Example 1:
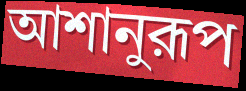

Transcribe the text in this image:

আশানুরূপ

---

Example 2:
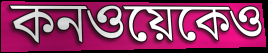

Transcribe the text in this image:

কনওয়েকেও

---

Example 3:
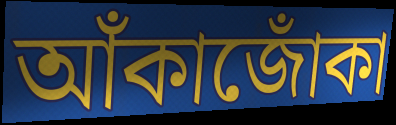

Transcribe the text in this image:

আঁকাজোঁকা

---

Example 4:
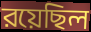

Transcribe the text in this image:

রয়েছিল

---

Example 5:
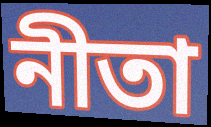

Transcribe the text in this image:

নীতা